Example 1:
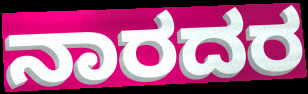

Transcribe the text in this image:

ನಾರದರ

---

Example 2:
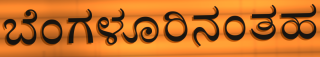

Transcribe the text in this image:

ಬೆಂಗಳೂರಿನಂತಹ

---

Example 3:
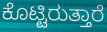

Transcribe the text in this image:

ಕೊಟ್ಟಿರುತ್ತಾರೆ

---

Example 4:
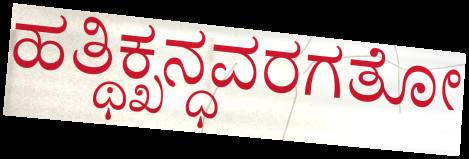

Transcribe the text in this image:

ಹತ್ಥಿಕ್ಖನ್ಧವರಗತೋ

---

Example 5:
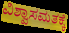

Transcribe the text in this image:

ವಿಶ್ವಾಸಮತಕ್ಕೆ